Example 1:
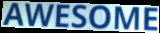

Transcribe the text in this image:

AWESOME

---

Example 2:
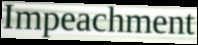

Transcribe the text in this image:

Impeachment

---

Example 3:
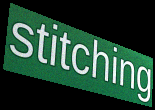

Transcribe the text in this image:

stitching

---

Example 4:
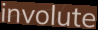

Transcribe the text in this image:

involute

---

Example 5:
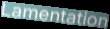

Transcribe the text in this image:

Lamentation